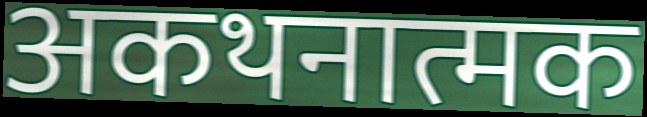
अकथनात्मक